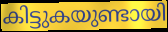
കിട്ടുകയുണ്ടായി